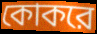
কোকরে